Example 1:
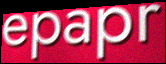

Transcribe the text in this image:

epapr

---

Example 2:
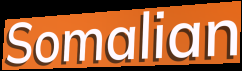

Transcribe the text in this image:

Somalian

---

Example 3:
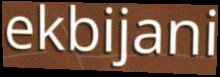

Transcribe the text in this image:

ekbijani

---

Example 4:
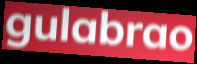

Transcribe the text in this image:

gulabrao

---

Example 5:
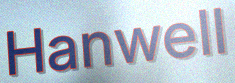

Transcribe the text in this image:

Hanwell